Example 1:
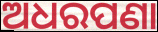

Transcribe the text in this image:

ଅଧରପଣା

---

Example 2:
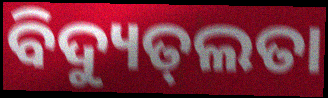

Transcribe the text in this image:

ବିଦ୍ୟୁତ୍‌ଲତା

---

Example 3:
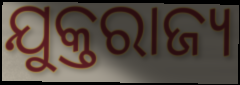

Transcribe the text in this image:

ଯୁକ୍ତରାଜ୍ୟ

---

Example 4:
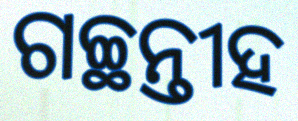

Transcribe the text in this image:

ଗଚ୍ଛନ୍ତୀହ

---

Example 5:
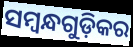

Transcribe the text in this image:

ସମ୍ବନ୍ଧଗୁଡ଼ିକର